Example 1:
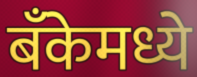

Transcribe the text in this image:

बँकेमध्ये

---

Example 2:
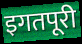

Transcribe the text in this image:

इगतपूरी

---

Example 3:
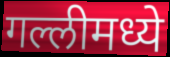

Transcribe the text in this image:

गल्लीमध्ये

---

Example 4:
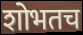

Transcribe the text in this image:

शोभतच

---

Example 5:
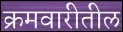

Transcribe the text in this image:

क्रमवारीतील